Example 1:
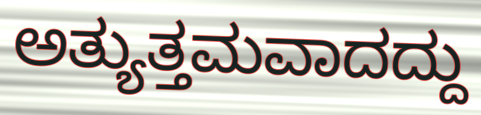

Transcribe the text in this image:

ಅತ್ಯುತ್ತಮವಾದದ್ದು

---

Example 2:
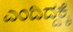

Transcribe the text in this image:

ಎಂದಿದ್ದಕ್ಕೆ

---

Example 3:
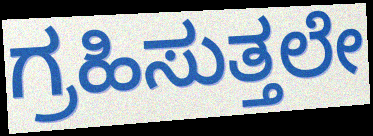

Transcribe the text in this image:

ಗ್ರಹಿಸುತ್ತಲೇ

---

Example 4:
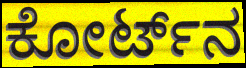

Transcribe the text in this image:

ಕೋರ್ಟ್‌ನ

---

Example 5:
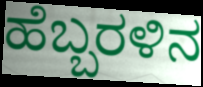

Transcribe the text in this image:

ಹೆಬ್ಬರಳಿನ